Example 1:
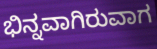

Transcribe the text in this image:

ಭಿನ್ನವಾಗಿರುವಾಗ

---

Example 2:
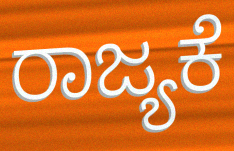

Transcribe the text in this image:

ರಾಜ್ಯಕೆ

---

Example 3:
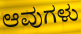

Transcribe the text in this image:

ಆವುಗಳು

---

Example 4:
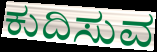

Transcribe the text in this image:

ಕುದಿಸುವ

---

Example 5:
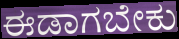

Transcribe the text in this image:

ಈಡಾಗಬೇಕು